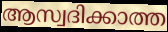
ആസ്വദിക്കാത്ത